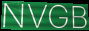
NVGB